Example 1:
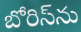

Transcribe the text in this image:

బోరిస్‌ను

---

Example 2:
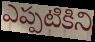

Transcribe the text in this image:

ఎప్పటికిని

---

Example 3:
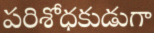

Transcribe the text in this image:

పరిశోధకుడుగా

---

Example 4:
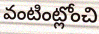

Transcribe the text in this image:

వంటింట్లోంచి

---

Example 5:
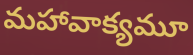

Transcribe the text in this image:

మహావాక్యమూ